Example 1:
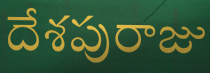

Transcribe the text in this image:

దేశపురాజు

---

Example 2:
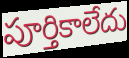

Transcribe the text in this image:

పూర్తికాలేదు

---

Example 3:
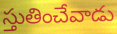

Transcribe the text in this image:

స్తుతించేవాడు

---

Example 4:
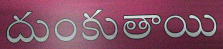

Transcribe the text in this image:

దుంకుతాయి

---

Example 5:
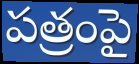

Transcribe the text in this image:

పత్రంపై